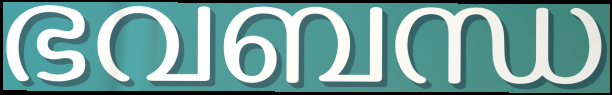
ഭവബന്ധ